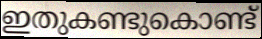
ഇതുകണ്ടുകൊണ്ട്